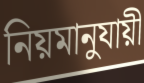
নিয়মানুযায়ী